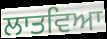
ਲਾਤਵਿਆ